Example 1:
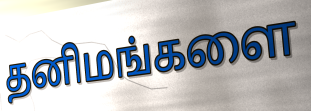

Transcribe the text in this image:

தனிமங்களை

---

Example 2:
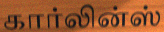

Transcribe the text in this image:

கார்லின்ஸ்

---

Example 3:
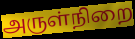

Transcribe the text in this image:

அருள்நிறை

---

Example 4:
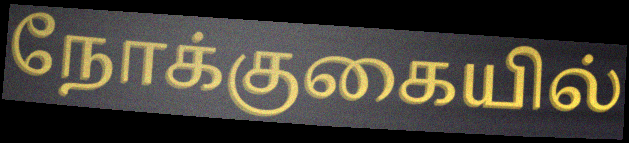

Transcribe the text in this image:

நோக்குகையில்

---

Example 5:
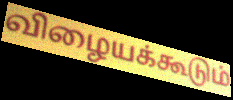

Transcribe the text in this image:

விழையக்கூடும்